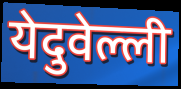
येदुवेल्ली